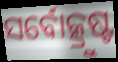
ସର୍ବୋତ୍କ୍ରୁଷ୍ଟ